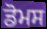
ਡੋਮਸ